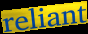
reliant